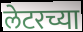
लेटरच्या